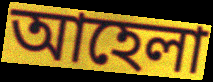
আহেলা